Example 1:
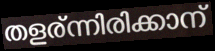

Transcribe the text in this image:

തളര്ന്നിരിക്കാന്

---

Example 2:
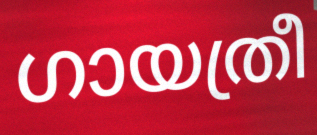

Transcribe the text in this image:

ഗായത്രീ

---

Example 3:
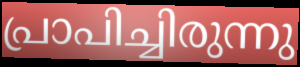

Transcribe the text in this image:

പ്രാപിച്ചിരുന്നു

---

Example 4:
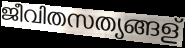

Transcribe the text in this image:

ജീവിതസത്യങ്ങള്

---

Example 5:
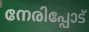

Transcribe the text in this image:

നേരിപ്പോട്